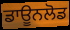
ਡਾਊਨਲੋਡ